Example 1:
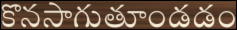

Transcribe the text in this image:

కొనసాగుతూండడం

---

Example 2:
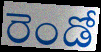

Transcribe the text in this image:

రెండో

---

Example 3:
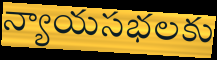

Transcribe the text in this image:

న్యాయసభలకు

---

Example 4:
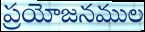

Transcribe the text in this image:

ప్రయోజనముల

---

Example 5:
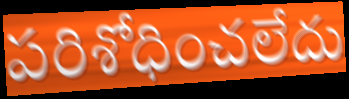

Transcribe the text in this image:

పరిశోధించలేదు